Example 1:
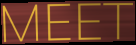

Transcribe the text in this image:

MEET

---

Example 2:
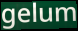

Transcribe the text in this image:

gelum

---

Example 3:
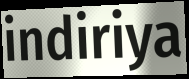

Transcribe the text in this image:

indiriya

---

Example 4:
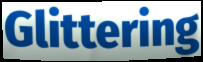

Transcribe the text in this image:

Glittering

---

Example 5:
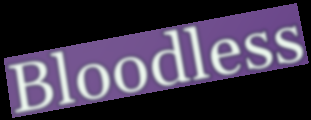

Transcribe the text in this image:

Bloodless